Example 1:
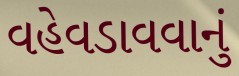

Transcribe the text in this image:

વહેવડાવવાનું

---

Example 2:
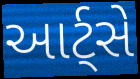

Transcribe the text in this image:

આર્ટ્સે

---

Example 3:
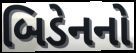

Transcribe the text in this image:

બિડેનનો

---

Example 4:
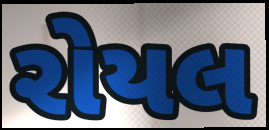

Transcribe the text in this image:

રોયલ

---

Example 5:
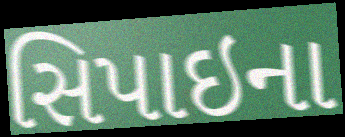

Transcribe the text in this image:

સિપાઇના